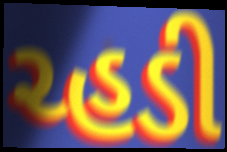
ચ્હડી